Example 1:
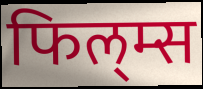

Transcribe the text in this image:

फिल्म्स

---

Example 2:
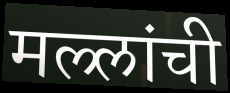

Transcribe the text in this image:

मल्लांची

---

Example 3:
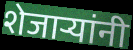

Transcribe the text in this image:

शेजाऱ्यांनी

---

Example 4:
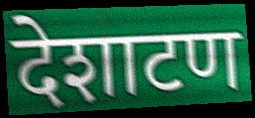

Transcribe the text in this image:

देशाटण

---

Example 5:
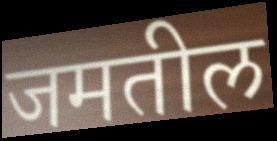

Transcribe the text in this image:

जमतील